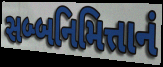
સબ્બનિમિત્તાનં